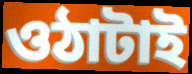
ওঠাটাই